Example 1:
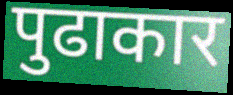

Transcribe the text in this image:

पुढाकार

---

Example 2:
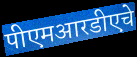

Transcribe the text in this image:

पीएमआरडीएचे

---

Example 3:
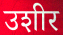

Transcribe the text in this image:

उशीर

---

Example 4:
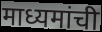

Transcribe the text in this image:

माध्यमांची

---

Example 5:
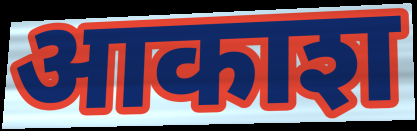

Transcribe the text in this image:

आकाश